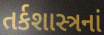
તર્કશાસ્ત્રનાં